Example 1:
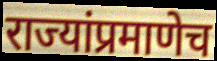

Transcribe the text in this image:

राज्यांप्रमाणेच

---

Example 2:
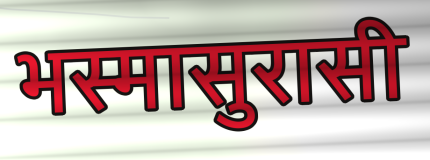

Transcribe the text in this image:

भस्मासुरासी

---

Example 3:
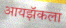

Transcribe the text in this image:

आयझॅकला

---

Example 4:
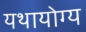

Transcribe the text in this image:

यथायोग्य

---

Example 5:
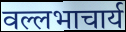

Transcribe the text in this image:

वल्लभाचार्य